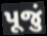
પૂજું